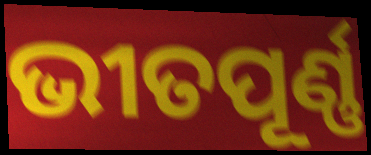
ଭୀତପୂର୍ଣ୍ଣ